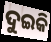
ଦୁଇକି